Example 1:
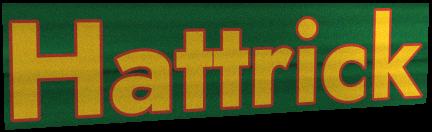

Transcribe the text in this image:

Hattrick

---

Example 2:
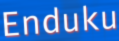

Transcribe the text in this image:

Enduku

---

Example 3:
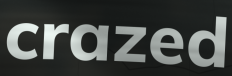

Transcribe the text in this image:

crazed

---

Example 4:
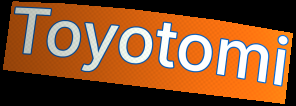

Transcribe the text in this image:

Toyotomi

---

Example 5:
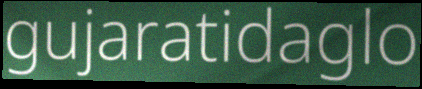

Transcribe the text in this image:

gujaratidaglo